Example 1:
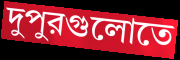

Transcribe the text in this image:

দুপুরগুলোতে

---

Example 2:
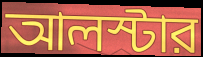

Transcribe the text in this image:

আলস্টার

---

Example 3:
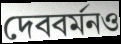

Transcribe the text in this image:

দেববর্মনও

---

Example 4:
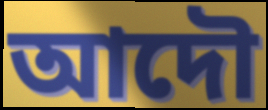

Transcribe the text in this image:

আদৌ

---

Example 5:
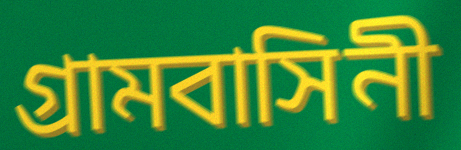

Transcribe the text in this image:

গ্রামবাসিনী